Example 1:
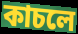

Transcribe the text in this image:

কাচলে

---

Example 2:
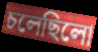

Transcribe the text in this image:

চলেছিলো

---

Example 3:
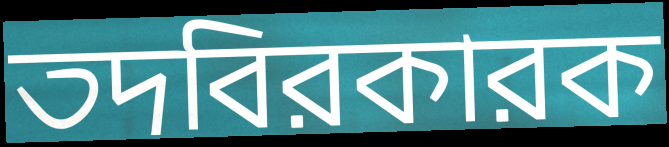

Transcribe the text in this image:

তদবিরকারক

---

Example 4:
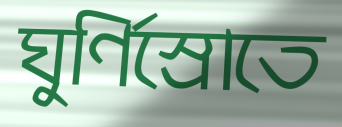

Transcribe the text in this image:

ঘুর্ণিস্রোতে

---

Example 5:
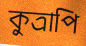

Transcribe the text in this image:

কুত্রাপি